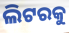
ଲିଟରକୁ